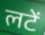
लटें